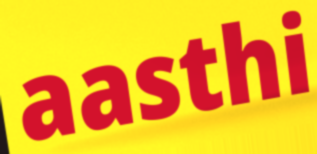
aasthi